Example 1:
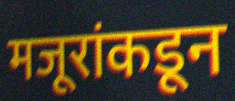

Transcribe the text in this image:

मजूरांकडून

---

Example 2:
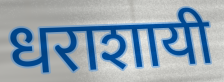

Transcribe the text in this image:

धराशायी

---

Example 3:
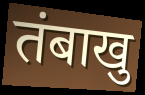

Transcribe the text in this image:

तंबाखु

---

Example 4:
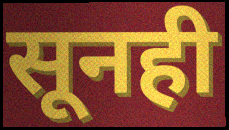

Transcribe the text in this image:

सूनही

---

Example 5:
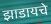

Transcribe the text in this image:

झाडायचे